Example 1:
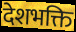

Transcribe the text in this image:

देशभक्ति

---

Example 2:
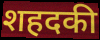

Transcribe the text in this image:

शहदकी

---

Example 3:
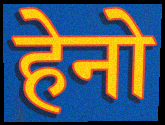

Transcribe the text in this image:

हेनो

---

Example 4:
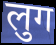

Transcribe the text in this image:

लुग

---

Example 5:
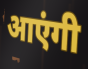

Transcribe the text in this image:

आएंगी